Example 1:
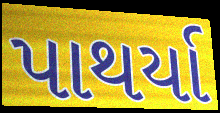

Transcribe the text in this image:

પાથર્યા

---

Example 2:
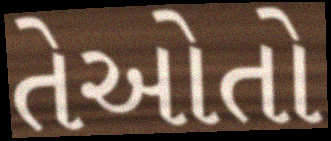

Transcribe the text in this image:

તેઓતો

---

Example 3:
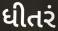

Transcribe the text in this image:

ધીતરં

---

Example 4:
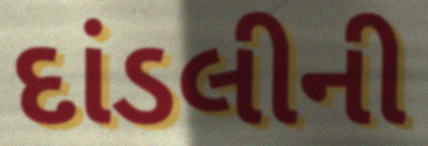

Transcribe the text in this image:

દાંડલીની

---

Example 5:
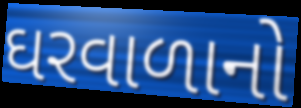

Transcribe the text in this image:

ઘરવાળાનો